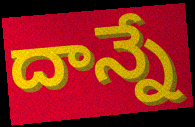
దాన్నే